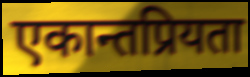
एकान्तप्रियता